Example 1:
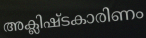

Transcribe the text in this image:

അക്ലിഷ്ടകാരിണം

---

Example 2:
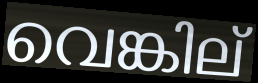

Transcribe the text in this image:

വെങ്കില്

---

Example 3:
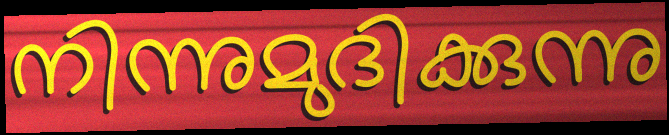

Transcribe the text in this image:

നിന്നുമുദിക്കുന്നു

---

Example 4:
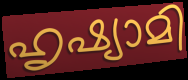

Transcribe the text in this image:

ഹൃഷ്യാമി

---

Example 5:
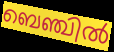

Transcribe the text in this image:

ബെഞ്ചിൽ